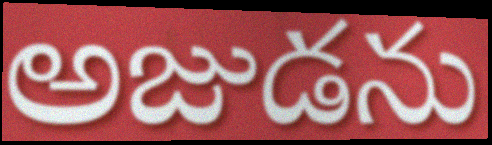
అజుడను